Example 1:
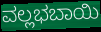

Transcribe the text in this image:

ವಲ್ಲಭಬಾಯಿ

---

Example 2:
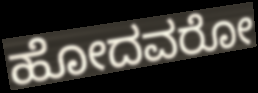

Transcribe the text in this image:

ಹೋದವರೋ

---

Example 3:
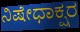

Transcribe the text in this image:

ನಿಷೇಧಾಕ್ಷರ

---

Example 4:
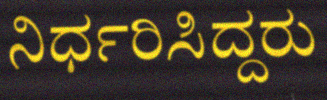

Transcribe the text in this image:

ನಿರ್ಧರಿಸಿದ್ದರು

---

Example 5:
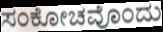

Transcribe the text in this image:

ಸಂಕೋಚವೊಂದು